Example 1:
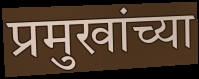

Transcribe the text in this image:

प्रमुखांच्या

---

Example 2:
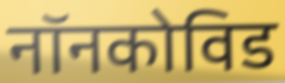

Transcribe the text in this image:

नॉनकोविड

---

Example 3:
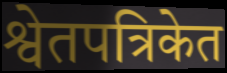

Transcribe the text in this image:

श्वेतपत्रिकेत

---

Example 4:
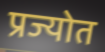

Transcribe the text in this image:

प्रज्योत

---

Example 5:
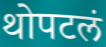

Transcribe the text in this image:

थोपटलं